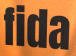
fida